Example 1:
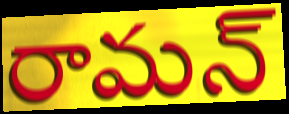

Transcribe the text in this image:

రామన్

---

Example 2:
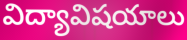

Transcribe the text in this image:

విద్యావిషయాలు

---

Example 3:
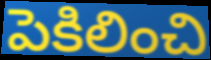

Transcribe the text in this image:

పెకిలించి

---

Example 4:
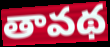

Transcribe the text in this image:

తావథ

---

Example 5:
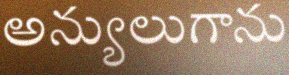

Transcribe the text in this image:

అన్యులుగాను